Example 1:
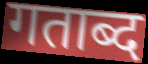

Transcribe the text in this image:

गताब्द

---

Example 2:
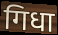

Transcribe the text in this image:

गिधा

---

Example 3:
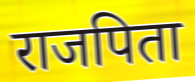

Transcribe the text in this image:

राजपिता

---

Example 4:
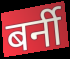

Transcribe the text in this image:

बर्नी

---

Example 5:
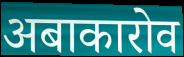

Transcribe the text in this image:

अबाकारोव